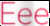
Eee